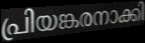
പ്രിയങ്കരനാക്കി